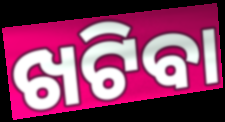
ଖଟିବା